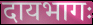
दायभागः